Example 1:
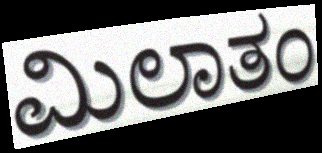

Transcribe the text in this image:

ಮಿಲಾತಂ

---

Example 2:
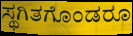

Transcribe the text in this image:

ಸ್ಥಗಿತಗೊಂಡರೂ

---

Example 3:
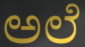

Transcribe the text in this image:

ಅಲೆ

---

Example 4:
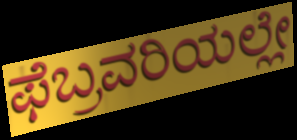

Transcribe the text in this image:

ಫೆಬ್ರವರಿಯಲ್ಲೇ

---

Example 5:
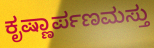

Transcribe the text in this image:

ಕೃಷ್ಣಾರ್ಪಣಮಸ್ತು